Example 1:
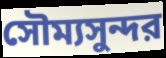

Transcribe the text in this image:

সৌম্যসুন্দর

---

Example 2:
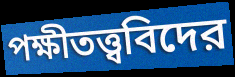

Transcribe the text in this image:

পক্ষীতত্ত্ববিদের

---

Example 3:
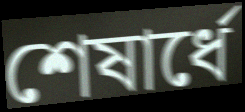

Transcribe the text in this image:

শেষার্ধে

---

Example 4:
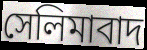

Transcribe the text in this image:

সেলিমাবাদ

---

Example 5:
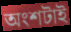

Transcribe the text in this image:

অংশটাই